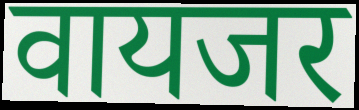
वायजर